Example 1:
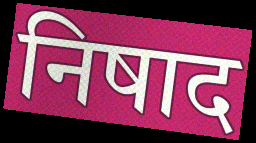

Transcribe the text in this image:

निषाद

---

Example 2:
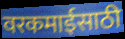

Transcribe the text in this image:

वरकमाईसाठी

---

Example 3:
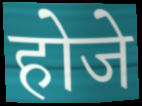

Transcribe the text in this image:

होजे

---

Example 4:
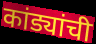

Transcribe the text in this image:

कांड्यांची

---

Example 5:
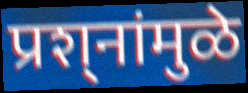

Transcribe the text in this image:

प्रश्नांमुळे